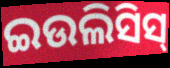
ଇଉଲିସିସ୍